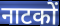
नाटकों